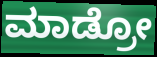
ಮಾಡ್ರೋ